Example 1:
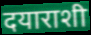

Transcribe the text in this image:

दयाराशी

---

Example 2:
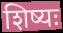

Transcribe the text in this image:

शिष्यः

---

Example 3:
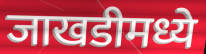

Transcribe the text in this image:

जाखडीमध्ये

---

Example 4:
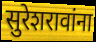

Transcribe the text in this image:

सुरेशरावांना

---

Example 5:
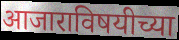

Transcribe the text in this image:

आजाराविषयीच्या